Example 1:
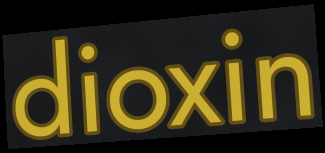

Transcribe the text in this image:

dioxin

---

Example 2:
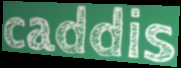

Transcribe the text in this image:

caddis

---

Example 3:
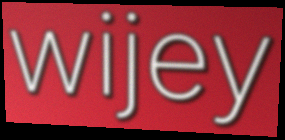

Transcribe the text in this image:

wijey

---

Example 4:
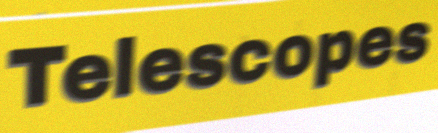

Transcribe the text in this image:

Telescopes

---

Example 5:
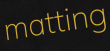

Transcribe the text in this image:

matting